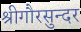
श्रीगौरसुन्दर